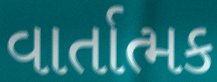
વાર્તાત્મક